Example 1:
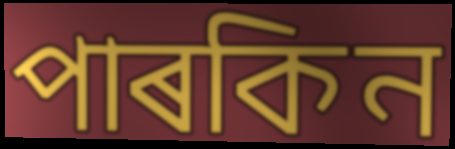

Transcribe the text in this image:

পাৰকিন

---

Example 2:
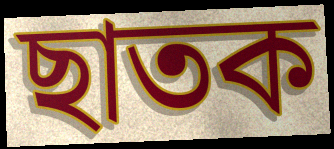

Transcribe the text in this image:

ছাতক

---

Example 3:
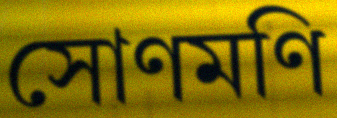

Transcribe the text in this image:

সোণমণি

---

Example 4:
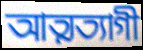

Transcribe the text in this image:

আত্মত্যাগী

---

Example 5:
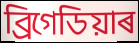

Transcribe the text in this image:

ব্ৰিগেডিয়াৰ